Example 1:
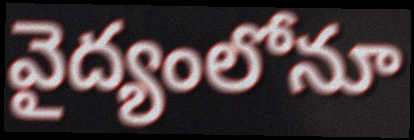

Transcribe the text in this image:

వైద్యంలోనూ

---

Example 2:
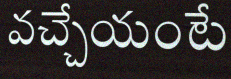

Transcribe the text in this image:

వచ్చేయంటే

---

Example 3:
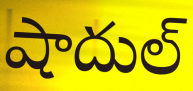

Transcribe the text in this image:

షాదుల్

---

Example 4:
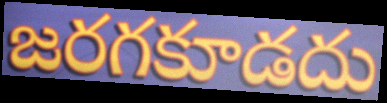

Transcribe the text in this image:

జరగకూడదు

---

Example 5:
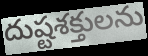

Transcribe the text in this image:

దుష్టశక్తులను